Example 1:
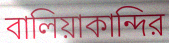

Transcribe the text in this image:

বালিয়াকান্দির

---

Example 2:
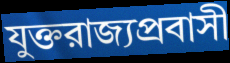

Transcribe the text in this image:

যুক্তরাজ্যপ্রবাসী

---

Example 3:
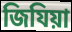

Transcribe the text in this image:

জিযিয়া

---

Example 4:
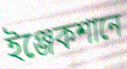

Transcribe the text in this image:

ইঞ্জেকশানে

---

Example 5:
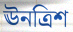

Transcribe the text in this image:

ঊনত্রিশ